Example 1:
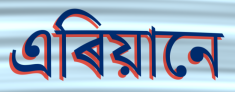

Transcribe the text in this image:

এৰিয়ানে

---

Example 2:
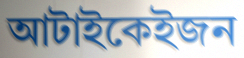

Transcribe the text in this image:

আটাইকেইজন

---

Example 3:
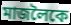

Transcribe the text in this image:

মাজলৈকে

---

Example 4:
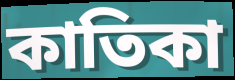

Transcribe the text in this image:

কাতিকা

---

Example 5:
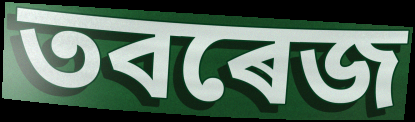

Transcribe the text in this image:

তবৰেজ